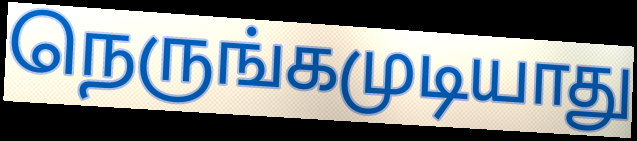
நெருங்கமுடியாது